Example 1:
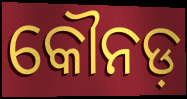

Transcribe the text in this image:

କୌନଡ଼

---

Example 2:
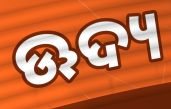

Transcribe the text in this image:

ଊଦ୍ୟ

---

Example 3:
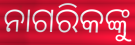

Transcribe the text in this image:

ନାଗରିକଙ୍କୁ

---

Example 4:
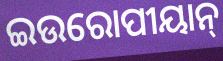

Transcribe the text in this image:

ଇଉରୋପୀୟାନ୍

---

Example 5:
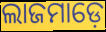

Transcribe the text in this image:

ଲାଜମାଡ଼େ